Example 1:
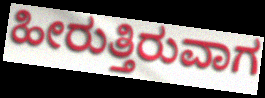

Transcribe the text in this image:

ಹೀರುತ್ತಿರುವಾಗ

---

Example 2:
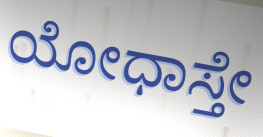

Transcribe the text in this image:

ಯೋಧಾಸ್ತೇ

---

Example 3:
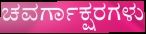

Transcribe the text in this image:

ಚವರ್ಗಾಕ್ಷರಗಳು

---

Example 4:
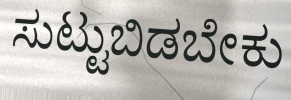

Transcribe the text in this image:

ಸುಟ್ಟುಬಿಡಬೇಕು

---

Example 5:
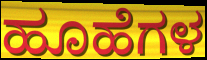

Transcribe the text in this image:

ಹೂಹೆಗಳ